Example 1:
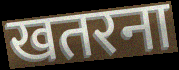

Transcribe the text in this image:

खतरना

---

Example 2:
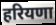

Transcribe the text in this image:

हरियणा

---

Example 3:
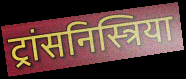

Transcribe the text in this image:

ट्रांसनिस्त्रिया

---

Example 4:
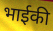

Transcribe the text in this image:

भाईकी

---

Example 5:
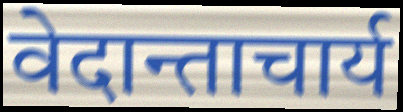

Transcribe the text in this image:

वेदान्ताचार्य